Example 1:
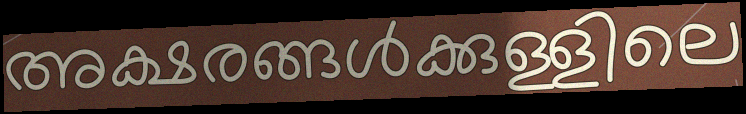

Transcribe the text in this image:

അക്ഷരങ്ങൾക്കുള്ളിലെ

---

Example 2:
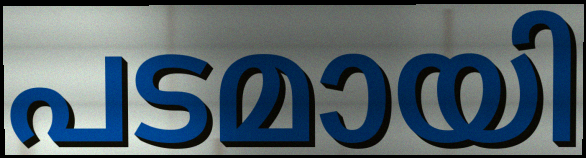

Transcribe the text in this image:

പടമായി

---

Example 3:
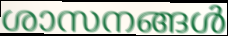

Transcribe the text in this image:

ശാസനങ്ങൾ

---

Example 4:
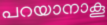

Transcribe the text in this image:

പറയാനാകൂ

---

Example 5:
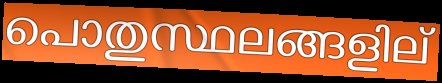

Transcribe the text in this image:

പൊതുസ്ഥലങ്ങളില്